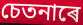
চেতনাৰে